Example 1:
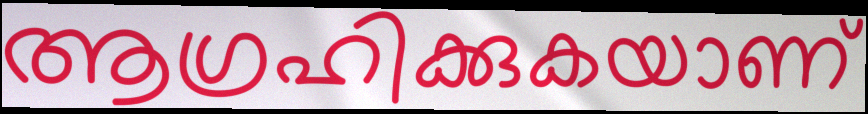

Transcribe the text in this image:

ആഗ്രഹിക്കുകയാണ്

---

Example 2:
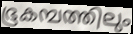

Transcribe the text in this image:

ഭൂകമ്പത്തിലും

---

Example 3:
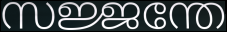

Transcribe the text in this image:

സജ്ജന്തേ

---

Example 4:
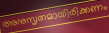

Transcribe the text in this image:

അനുസൃതമായിരിക്കണം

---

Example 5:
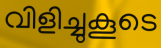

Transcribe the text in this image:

വിളിച്ചുകൂടെ